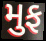
મુફ